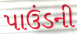
પાઉંડની